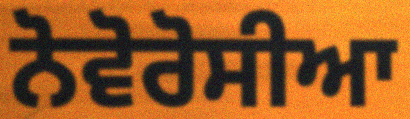
ਨੋਵੋਰੋਸੀਆ